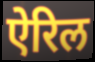
ऐरिल